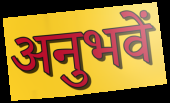
अनुभवें